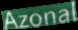
Azonal